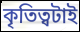
কৃতিত্বটাই